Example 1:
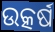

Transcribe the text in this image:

ଉତ୍କର୍ଷ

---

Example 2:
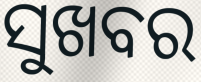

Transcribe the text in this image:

ସୁଖବର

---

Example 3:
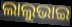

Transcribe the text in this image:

ଲାଲୁଭାଇ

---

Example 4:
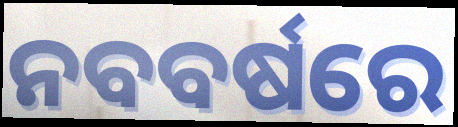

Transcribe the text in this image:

ନବବର୍ଷରେ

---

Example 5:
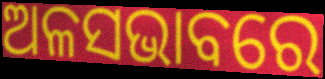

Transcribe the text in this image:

ଅଳସଭାବରେ